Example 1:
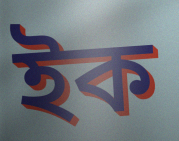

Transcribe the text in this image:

ইক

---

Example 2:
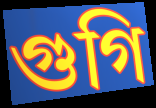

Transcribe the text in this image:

গুগি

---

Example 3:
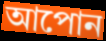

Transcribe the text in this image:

আপোন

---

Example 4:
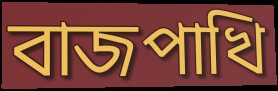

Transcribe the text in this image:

বাজপাখি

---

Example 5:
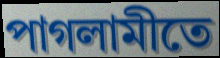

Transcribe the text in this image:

পাগলামীতে